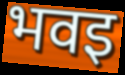
भवइ